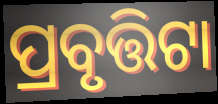
ପ୍ରବୃତ୍ତିଟା